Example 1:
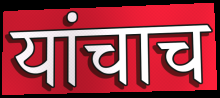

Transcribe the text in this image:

यांचाच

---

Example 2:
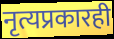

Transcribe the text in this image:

नृत्यप्रकारही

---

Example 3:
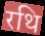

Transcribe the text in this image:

रथि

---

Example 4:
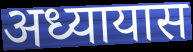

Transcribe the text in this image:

अध्यायास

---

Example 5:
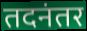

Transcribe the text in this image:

तदनंतर